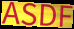
ASDF